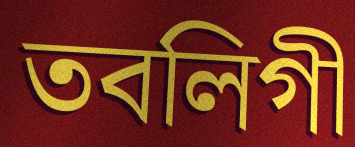
তবলিগী